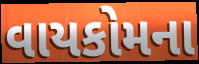
વાયકોમના